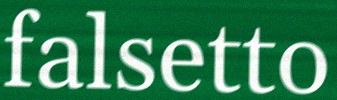
falsetto